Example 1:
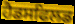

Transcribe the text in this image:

ਹੈਡਸਫਿਲਡ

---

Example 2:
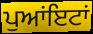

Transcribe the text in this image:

ਪੁਆਂਇਟਾਂ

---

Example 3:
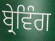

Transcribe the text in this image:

ਬ੍ਰੇਵਿੰਗ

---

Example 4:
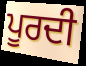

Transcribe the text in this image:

ਪੂਰਦੀ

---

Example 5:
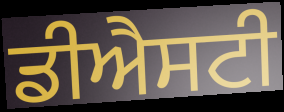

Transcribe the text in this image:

ਡੀਐਸਟੀ